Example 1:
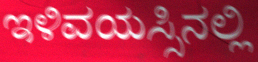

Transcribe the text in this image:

ಇಳಿವಯಸ್ಸಿನಲ್ಲಿ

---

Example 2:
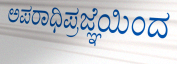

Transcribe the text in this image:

ಅಪರಾಧಿಪ್ರಜ್ಞೆಯಿಂದ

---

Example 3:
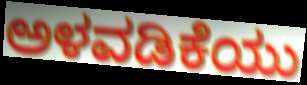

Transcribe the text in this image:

ಅಳವಡಿಕೆಯು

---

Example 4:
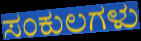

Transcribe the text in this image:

ಸಂಕುಲಗಳು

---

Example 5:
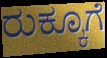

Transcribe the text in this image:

ರುಕ್ಕೂಗೆ